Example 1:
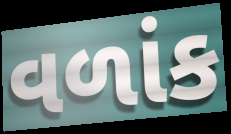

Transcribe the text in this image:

વળાંક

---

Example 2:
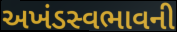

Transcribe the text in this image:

અખંડસ્વભાવની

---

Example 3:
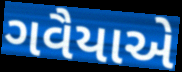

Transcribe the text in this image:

ગવૈયાએ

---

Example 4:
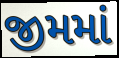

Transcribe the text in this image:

જીમમાં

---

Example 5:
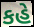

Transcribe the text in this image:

કહે